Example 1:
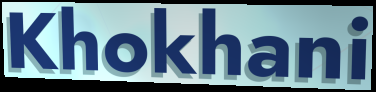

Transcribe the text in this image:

Khokhani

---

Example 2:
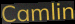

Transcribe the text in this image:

Camlin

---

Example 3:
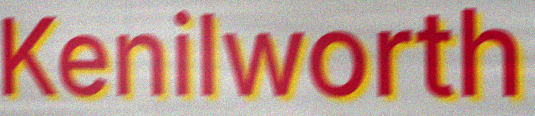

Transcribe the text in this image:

Kenilworth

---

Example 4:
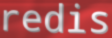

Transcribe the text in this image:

redis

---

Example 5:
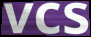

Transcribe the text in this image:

vcs